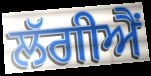
ਲੱਗੀਐਂ